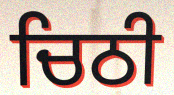
ਚਿਠੀ